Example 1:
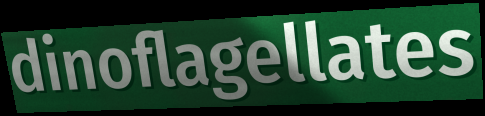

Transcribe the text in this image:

dinoflagellates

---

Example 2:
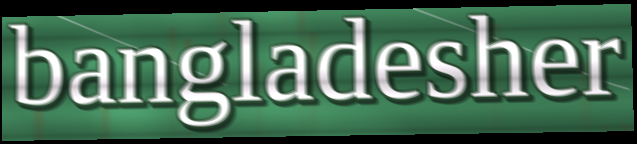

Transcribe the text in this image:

bangladesher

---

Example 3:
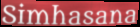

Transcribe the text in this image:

Simhasana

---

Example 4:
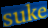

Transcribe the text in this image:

suke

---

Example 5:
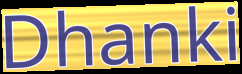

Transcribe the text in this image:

Dhanki